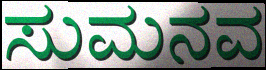
ಸುಮನವ